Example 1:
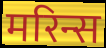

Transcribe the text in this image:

मरिन्स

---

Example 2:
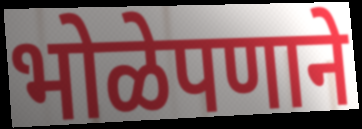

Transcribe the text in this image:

भोळेपणाने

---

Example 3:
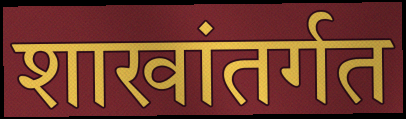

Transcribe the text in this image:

शाखांतर्गत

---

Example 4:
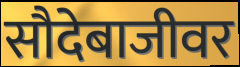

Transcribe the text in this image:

सौदेबाजीवर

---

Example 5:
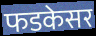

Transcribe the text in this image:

फडकेसर